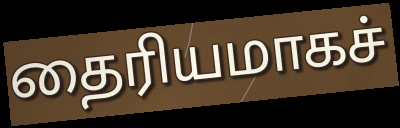
தைரியமாகச்